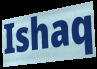
Ishaq